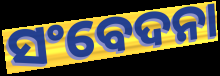
ସଂବେଦନା